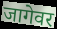
जागेवर